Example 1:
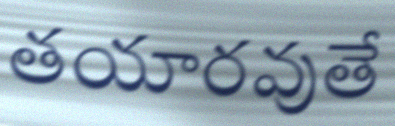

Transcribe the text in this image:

తయారవుతే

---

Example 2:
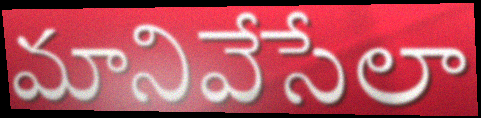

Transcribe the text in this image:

మానివేసేలా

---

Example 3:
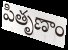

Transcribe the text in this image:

పితృణాం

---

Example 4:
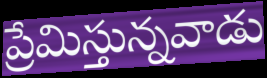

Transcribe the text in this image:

ప్రేమిస్తున్నవాడు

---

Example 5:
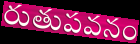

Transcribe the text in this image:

రుతుపవనం